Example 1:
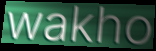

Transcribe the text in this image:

wakho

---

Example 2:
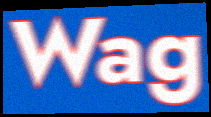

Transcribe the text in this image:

Wag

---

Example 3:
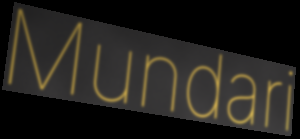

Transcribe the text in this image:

Mundari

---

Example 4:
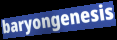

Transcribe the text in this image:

baryongenesis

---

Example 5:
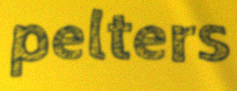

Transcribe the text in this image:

pelters